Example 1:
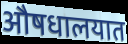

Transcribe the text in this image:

औषधालयात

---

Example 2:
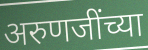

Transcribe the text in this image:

अरुणजींच्या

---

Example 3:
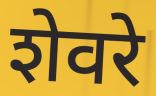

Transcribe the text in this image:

शेवरे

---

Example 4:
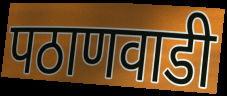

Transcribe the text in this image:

पठाणवाडी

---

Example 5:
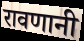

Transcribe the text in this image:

रावणानी